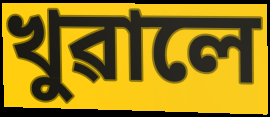
খুৱালে